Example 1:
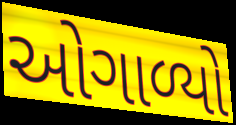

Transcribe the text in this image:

ઓગાળ્યો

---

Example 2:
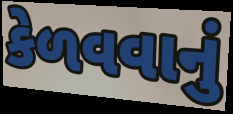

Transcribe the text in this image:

કેળવવાનું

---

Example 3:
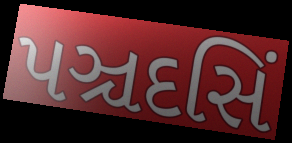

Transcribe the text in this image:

પઞ્ચદસિં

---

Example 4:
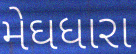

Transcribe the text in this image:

મેઘધારા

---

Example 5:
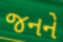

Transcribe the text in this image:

જનને